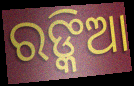
ରଙ୍କିଆ